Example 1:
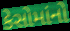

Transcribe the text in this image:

કેસોમાંનો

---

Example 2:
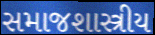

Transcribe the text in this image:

સમાજશાસ્ત્રીય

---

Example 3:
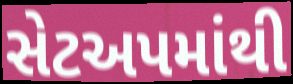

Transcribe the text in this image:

સેટઅપમાંથી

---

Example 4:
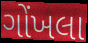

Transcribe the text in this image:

ગોંખલા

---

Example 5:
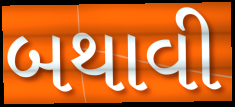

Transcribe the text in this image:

બથાવી